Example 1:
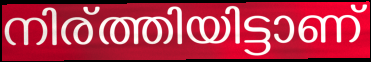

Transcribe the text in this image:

നിര്ത്തിയിട്ടാണ്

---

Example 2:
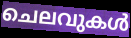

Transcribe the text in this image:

ചെലവുകൾ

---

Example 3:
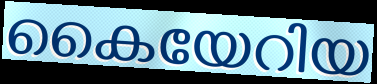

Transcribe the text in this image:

കൈയേറിയ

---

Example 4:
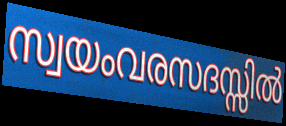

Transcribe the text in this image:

സ്വയംവരസദസ്സിൽ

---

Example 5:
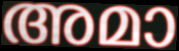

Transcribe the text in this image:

അമാ